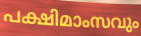
പക്ഷിമാംസവും